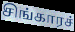
சிங்காரச்